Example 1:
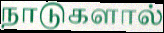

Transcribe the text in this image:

நாடுகளால்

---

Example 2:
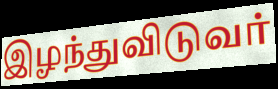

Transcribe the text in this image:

இழந்துவிடுவர்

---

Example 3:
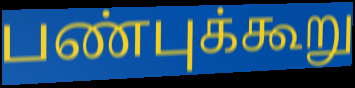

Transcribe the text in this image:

பண்புக்கூறு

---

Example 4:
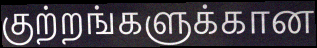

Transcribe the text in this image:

குற்றங்களுக்கான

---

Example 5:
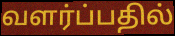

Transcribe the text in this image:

வளர்ப்பதில்